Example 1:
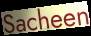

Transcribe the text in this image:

Sacheen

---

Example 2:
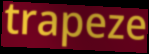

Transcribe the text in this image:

trapeze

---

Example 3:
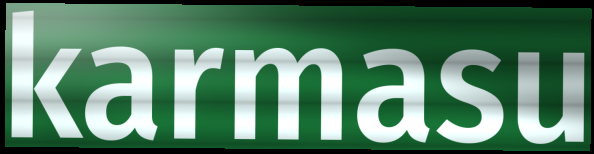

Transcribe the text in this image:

karmasu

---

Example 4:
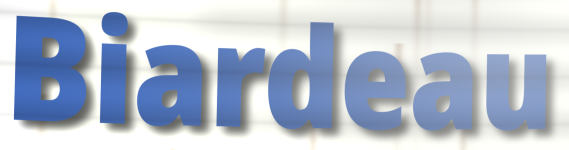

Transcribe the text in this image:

Biardeau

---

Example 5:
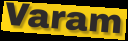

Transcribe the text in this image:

Varam